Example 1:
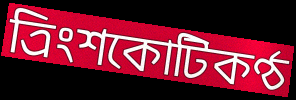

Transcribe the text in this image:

ত্রিংশকোটিকণ্ঠ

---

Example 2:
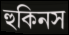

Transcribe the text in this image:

হুকিনস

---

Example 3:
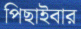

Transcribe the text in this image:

পিছাইবার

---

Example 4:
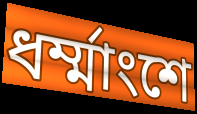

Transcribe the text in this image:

ধর্ম্মাংশে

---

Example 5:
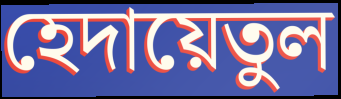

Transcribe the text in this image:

হেদায়েতুল